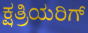
ಕ್ಷತ್ರಿಯರಿಗ್